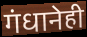
गंधानेही